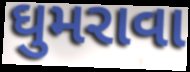
ઘુમરાવા